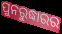
ପୁନରୁଦ୍ଧାରର